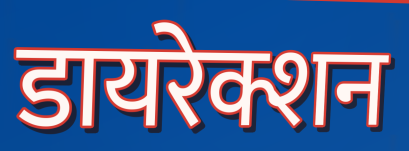
डायरेक्शन